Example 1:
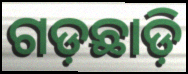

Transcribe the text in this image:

ଗଡ଼ଛାଡ଼ି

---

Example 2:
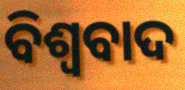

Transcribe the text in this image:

ବିଶ୍ୱବାଦ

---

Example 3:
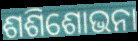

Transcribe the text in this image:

ଶଶିଶୋଭନା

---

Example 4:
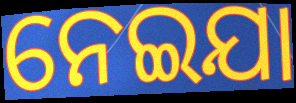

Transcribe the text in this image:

ନେଇଯା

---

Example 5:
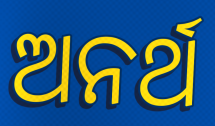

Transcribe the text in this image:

ଅନର୍ଥ